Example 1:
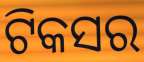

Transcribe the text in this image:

ଟିକସର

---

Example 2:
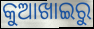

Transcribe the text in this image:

କୁଆଖାଇରୁ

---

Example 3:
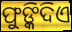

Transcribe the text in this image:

ଫୁଙ୍କିଦିଏ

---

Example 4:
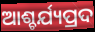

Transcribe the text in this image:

ଆଶ୍ଚର୍ଯ୍ୟପ୍ରଦ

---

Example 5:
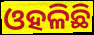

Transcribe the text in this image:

ଓହଳିଛି